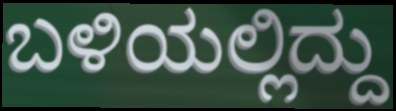
ಬಳಿಯಲ್ಲಿದ್ದು